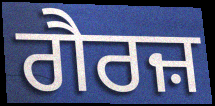
ਗੈਰਜ਼